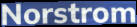
Norstrom